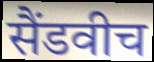
सैंडवीच